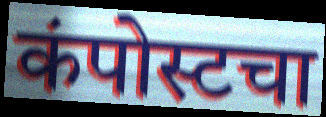
कंपोस्टचा